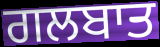
ਗਲਬਾਤ